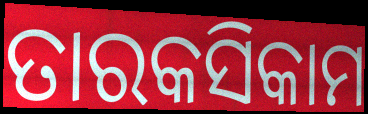
ତାରକସିକାମ